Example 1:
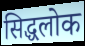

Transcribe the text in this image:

सिद्धलोक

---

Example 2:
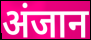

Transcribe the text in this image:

अंजान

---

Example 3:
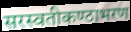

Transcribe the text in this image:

सरस्वतीकण्ठाभरण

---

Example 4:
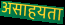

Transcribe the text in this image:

असाहयता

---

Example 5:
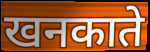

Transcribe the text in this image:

खनकाते